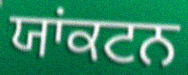
ਯਾਂਕਟਨ